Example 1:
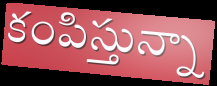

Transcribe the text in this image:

కంపిస్తున్నా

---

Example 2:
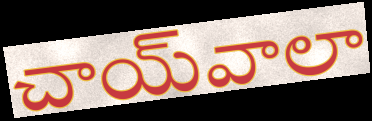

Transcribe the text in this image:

చాయ్‌వాలా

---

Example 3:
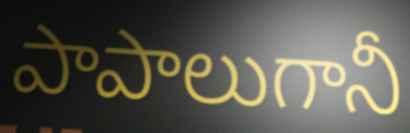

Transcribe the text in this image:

పాపాలుగానీ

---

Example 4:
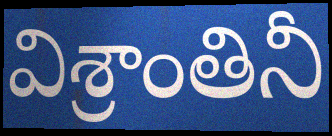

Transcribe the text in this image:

విశ్రాంతినీ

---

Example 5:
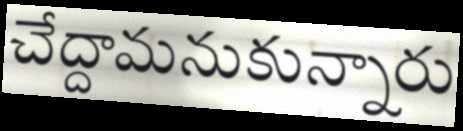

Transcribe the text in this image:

చేద్దామనుకున్నారు